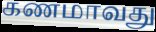
கணமாவது